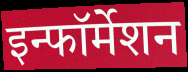
इन्फॉर्मेशन